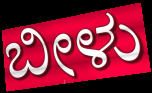
ಬೀಳು